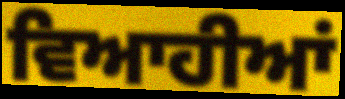
ਵਿਆਹੀਆਂ